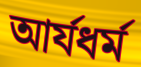
আর্যধর্ম